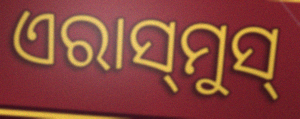
ଏରାସ୍‍ମୁସ୍